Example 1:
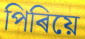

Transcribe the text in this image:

পিৰিয়ে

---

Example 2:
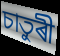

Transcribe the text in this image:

চাতুৰী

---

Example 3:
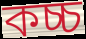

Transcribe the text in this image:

কচ্চ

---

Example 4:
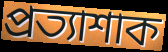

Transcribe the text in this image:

প্ৰত্যাশাক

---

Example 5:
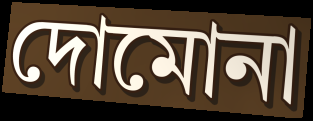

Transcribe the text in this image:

দোমোনা